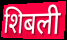
शिबली